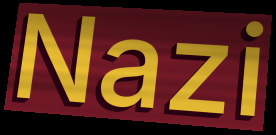
Nazi